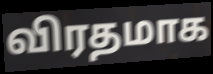
விரதமாக